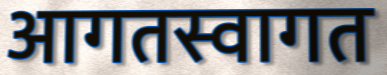
आगतस्वागत